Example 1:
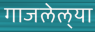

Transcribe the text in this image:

गाजलेल्या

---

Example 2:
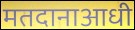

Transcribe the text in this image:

मतदानाआधी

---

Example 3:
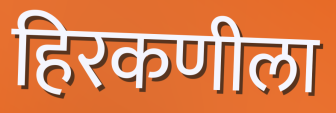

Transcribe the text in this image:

हिरकणीला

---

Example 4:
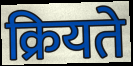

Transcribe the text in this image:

क्रियते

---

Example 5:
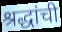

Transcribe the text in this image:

श्रद्धांची